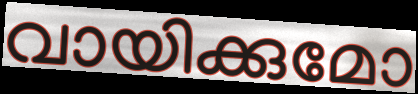
വായിക്കുമോ